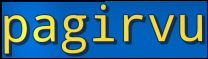
pagirvu